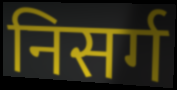
निसर्ग